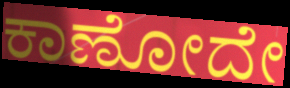
ಕಾಣೋದೇ